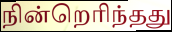
நின்றெரிந்தது